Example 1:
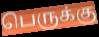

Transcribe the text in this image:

பெருக்கு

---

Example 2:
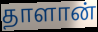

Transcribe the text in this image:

தாளான்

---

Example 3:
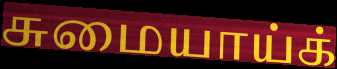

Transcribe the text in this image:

சுமையாய்க்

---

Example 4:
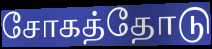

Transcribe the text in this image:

சோகத்தோடு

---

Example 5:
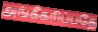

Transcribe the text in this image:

அங்கீகரிப்பதே